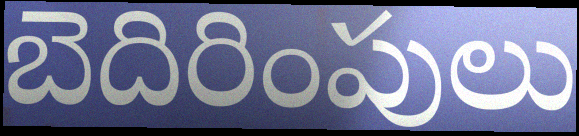
బెదిరింపులు